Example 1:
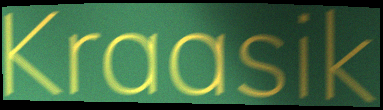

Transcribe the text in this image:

Kraasik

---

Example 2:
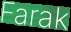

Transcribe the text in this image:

Farak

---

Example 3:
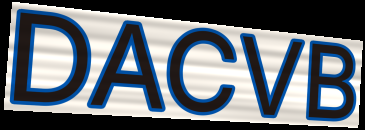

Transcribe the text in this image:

DACVB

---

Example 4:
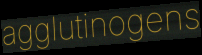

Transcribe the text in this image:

agglutinogens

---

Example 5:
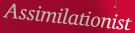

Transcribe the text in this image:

Assimilationist